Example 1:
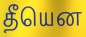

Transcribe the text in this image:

தீயென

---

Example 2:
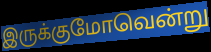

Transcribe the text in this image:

இருக்குமோவென்று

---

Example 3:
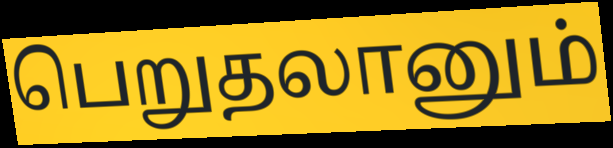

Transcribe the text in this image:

பெறுதலானும்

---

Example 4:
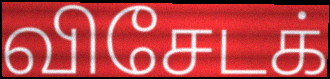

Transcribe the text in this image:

விசேடக்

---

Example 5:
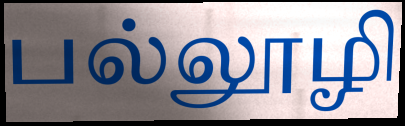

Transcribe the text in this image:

பல்லூழி